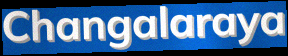
Changalaraya